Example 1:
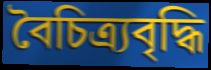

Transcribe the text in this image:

বৈচিত্র্যবৃদ্ধি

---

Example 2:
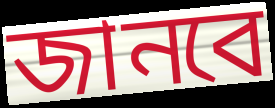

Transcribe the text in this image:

জানবে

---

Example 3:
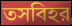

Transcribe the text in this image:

তসবিহর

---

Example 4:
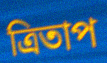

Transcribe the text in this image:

ত্রিতাপ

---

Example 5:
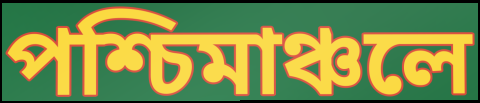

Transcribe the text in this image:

পশ্চিমাঞ্চলে